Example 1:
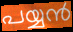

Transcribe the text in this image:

പയ്യൻ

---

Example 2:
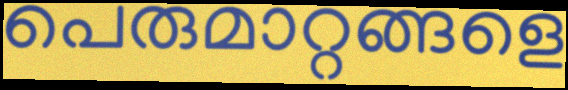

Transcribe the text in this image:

പെരുമാറ്റങ്ങളെ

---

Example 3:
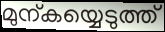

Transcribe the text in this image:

മുന്കയ്യെടുത്ത്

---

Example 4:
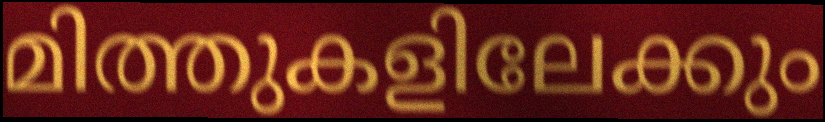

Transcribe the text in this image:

മിത്തുകളിലേക്കും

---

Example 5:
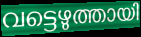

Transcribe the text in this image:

വട്ടെഴുത്തായി